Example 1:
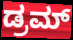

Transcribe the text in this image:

ಡ್ರಮ್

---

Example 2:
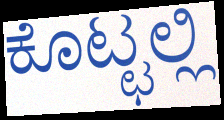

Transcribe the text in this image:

ಕೊಟ್ಟಲ್ಲಿ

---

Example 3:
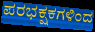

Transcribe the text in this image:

ಪರಭಕ್ಷಕಗಳಿಂದ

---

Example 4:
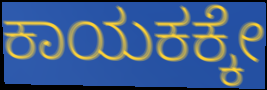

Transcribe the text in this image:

ಕಾಯಕಕ್ಕೇ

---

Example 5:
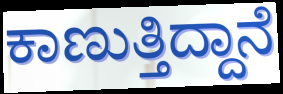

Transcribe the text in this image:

ಕಾಣುತ್ತಿದ್ದಾನೆ